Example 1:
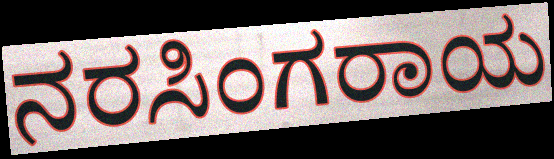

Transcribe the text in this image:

ನರಸಿಂಗರಾಯ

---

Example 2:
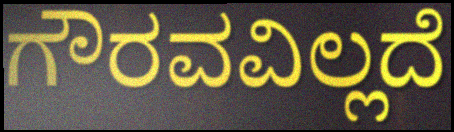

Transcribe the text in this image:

ಗೌರವವಿಲ್ಲದೆ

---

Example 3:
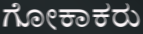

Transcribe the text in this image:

ಗೋಕಾಕರು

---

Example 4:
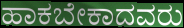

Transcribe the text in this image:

ಹಾಕಬೇಕಾದವರು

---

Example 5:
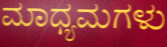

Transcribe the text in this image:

ಮಾಧ್ಯಮಗಳು